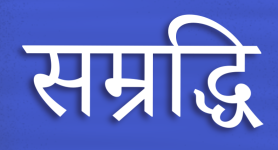
सम्रद्धि